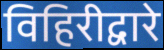
विहिरीद्वारे